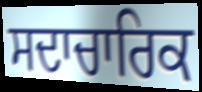
ਸਦਾਚਾਰਿਕ